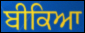
ਬੀਕਿਆ